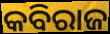
କବିରାଜ